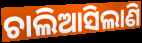
ଚାଲିଆସିଲାଣି